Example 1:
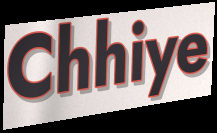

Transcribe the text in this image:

Chhiye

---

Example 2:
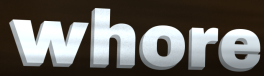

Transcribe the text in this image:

whore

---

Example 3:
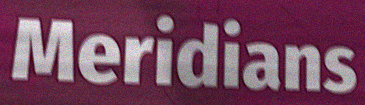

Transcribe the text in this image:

Meridians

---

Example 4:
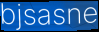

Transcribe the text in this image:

bjsasne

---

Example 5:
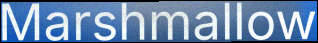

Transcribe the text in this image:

Marshmallow